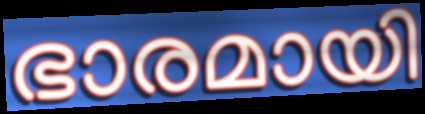
ഭാരമായി